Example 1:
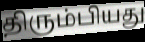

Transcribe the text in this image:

திரும்பியது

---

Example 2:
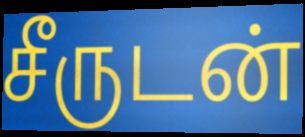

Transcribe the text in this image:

சீருடன்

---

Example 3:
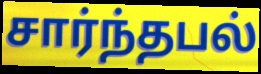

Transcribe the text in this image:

சார்ந்தபல்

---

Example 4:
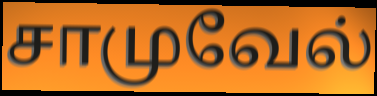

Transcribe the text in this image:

சாமுவேல்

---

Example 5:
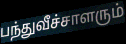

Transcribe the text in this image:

பந்துவீச்சாளரும்